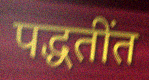
पद्धतींत